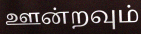
ஊன்றவும்